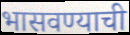
भासवण्याची